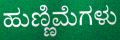
ಹುಣ್ಣಿಮೆಗಳು